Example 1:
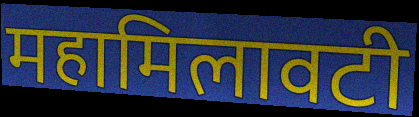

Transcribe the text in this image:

महामिलावटी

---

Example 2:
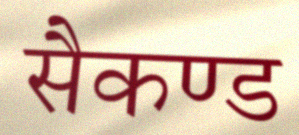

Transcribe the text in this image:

सैकण्ड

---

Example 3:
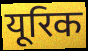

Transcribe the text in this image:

यूरिक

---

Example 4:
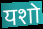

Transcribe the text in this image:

यशो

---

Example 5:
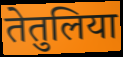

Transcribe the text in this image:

तेतुलिया